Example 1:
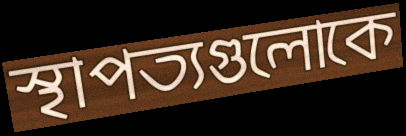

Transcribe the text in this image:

স্থাপত্যগুলোকে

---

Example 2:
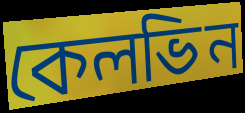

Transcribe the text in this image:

কেলভিন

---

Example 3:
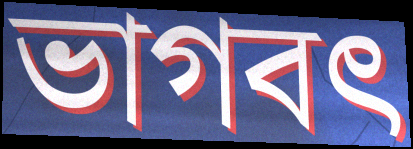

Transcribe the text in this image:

ভাগবৎ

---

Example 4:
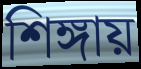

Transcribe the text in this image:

শিঙ্গায়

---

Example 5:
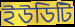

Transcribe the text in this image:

ইউডিটি